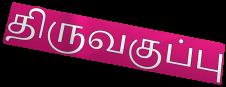
திருவகுப்பு